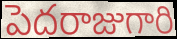
పెదరాజుగారి